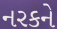
નરકને